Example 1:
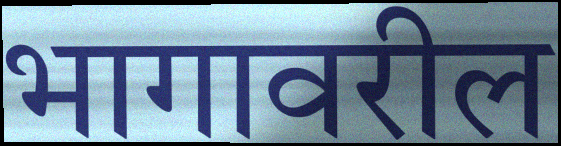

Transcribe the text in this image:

भागावरील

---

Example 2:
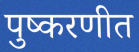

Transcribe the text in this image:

पुष्करणीत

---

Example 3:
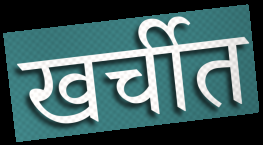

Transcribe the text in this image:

खर्चीत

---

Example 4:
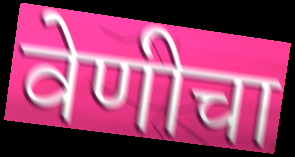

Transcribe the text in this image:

वेणीचा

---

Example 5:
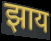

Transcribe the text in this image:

झाय